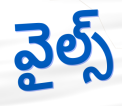
వైల్స్